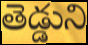
తెడ్డుని